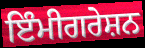
ਇੰਮੀਗਰੇਸ਼ਨ